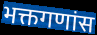
भक्तगणांस